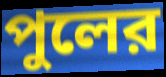
পুলের